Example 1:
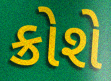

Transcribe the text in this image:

ક્રોશે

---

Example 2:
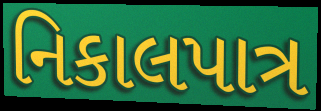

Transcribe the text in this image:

નિકાલપાત્ર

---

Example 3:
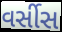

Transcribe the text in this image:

વર્સીસ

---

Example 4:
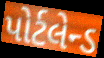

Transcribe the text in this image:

પોર્ટલેન્ડ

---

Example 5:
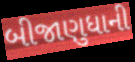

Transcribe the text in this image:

બીજાણુધાની